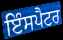
ਇੰਸਪੈਟਰ